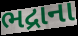
ભદ્રાના